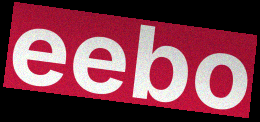
eebo